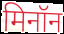
मिनॉन